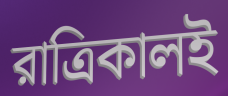
রাত্রিকালই